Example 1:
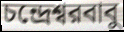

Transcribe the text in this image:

চন্দ্রেশ্বরবাবু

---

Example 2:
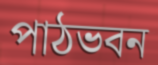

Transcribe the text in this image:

পাঠভবন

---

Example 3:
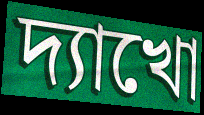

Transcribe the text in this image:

দ্যাখো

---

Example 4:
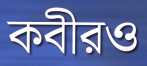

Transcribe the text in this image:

কবীরও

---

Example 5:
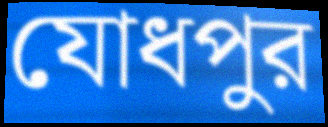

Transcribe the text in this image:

যোধপুর